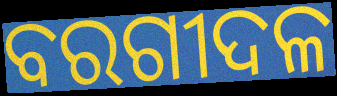
ବରଗୀଦଳ